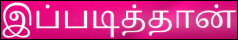
இப்படித்தான்